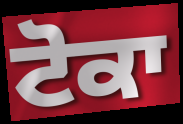
ਟੋਕਾ